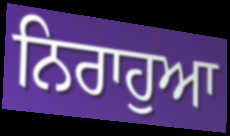
ਨਿਰਾਹੁਆ